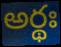
అర్థః